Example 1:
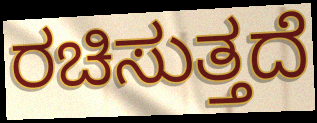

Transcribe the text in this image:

ರಚಿಸುತ್ತದೆ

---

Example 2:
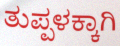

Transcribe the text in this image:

ತುಪ್ಪಳಕ್ಕಾಗಿ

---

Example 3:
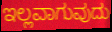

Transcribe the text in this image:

ಇಲ್ಲವಾಗುವುದು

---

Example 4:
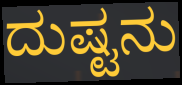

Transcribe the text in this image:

ದುಷ್ಟನು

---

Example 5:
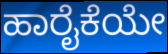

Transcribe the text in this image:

ಹಾರೈಕೆಯೇ